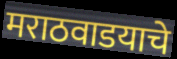
मराठवाडयाचे